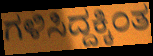
ಗಳಿಸಿದ್ದಕ್ಕಿಂತ